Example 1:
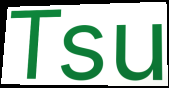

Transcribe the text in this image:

Tsu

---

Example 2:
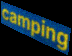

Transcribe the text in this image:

camping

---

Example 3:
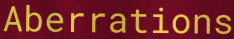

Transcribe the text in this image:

Aberrations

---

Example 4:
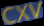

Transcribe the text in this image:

CXV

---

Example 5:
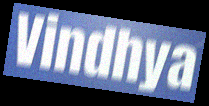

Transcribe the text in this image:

Vindhya